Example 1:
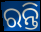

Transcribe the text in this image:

ରନ୍ତି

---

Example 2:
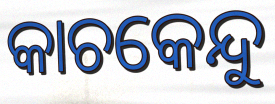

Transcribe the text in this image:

କାଚକେନ୍ଦୁ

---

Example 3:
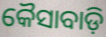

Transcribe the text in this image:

କୈସାବାଡ଼ି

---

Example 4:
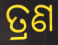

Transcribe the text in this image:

ତ୍ରଣ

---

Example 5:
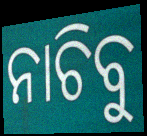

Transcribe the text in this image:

ନାଚିବୁ